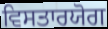
ਵਿਸਤਾਰਯੋਗ